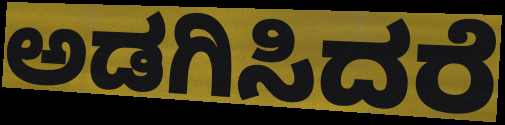
ಅಡಗಿಸಿದರೆ